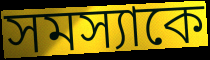
সমস্যাকে